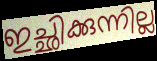
ഇച്ഛിക്കുന്നില്ല